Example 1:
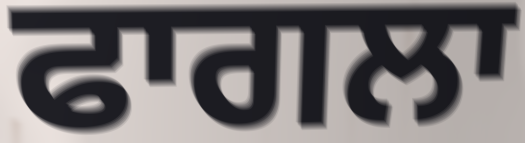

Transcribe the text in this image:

ਫਾਗਲਾ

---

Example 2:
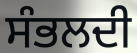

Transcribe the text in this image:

ਸੰਭਲਦੀ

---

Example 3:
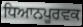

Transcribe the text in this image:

ਧਿਆਨਪੂਰਵਕ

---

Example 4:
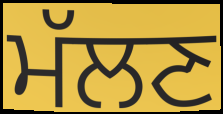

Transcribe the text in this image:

ਮੱਲਣ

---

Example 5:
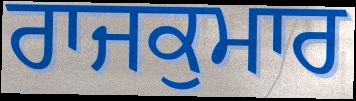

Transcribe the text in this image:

ਰਾਜਕੁਮਾਰ